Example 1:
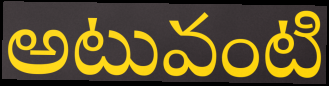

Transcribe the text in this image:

అటువంటి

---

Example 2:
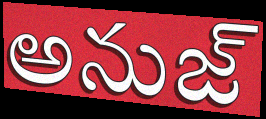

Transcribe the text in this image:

అనుజ్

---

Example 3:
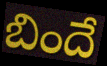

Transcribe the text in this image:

బిందే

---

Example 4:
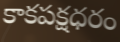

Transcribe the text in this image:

కాకపక్షధరం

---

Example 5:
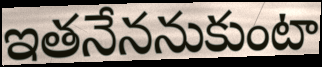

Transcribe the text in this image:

ఇతనేననుకుంటా